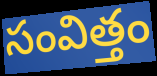
సంవిత్తం